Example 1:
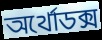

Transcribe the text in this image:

অর্থোডক্স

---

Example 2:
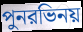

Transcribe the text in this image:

পুনরভিনয়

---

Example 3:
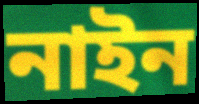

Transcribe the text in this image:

নাইন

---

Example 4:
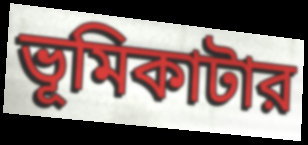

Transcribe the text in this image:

ভূমিকাটার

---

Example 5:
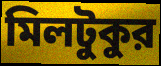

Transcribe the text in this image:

মিলটুকুর